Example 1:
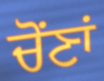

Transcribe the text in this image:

ਚੋਂਣਾਂ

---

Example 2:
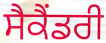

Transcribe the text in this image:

ਸੈਕੈਂਡਰੀ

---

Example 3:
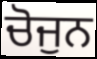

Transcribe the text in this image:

ਚੋਜੁਨ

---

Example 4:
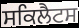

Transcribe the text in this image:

ਸਕਿਲੈਟਸ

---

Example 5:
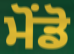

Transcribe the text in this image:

ਮੋਂਡੋ